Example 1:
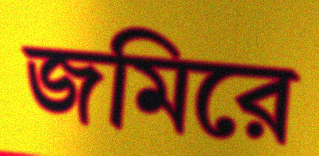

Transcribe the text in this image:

জমিরে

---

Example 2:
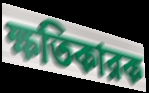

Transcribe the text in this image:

ক্ষতিকারক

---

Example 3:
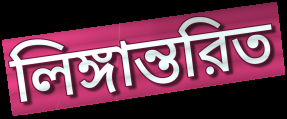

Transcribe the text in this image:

লিঙ্গান্তরিত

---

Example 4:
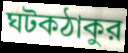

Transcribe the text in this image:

ঘটকঠাকুর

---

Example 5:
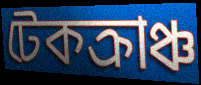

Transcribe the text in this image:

টেকক্রাঞ্চ